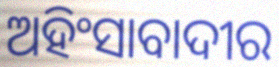
ଅହିଂସାବାଦୀର